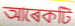
আৰেকটি